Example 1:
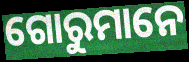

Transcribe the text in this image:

ଗୋରୁମାନେ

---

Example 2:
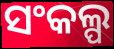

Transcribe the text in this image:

ସଂକଲ୍ପ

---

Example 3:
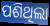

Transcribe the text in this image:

ପଶିଥିଲା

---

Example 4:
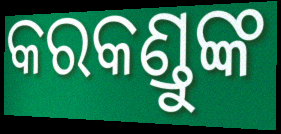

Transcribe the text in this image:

କରକଣ୍ଡୁଙ୍କ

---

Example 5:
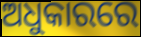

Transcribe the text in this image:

ଅଧୁକାରରେ